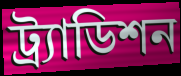
ট্র্যাডিশন